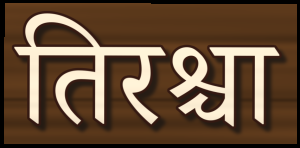
तिरश्चा